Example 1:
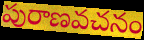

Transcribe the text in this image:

పురాణవచనం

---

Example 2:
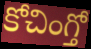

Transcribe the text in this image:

కోచింగ్తో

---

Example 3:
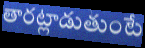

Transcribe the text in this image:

తారట్లాడుతుంటే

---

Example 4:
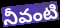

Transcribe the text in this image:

నీవంటి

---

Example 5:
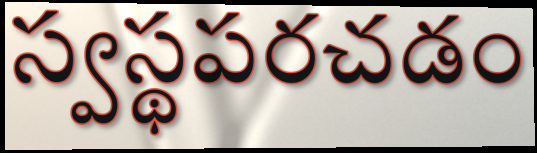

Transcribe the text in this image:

స్వస్థపరచడం